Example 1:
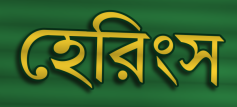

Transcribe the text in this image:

হেরিংস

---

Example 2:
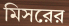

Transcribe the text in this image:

মিসরের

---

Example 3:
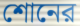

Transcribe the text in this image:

শোনের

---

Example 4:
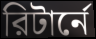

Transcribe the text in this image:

রিটার্নে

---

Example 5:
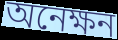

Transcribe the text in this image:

অনেক্ষন